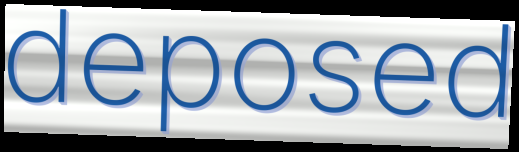
deposed